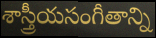
శాస్త్రీయసంగీతాన్ని